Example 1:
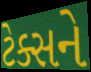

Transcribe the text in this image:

ટેક્સને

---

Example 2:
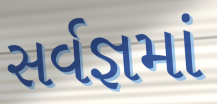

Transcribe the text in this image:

સર્વજ્ઞમાં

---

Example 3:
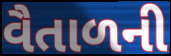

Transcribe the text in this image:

વૈતાળની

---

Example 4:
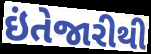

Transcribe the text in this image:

ઇંતેજારીથી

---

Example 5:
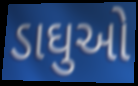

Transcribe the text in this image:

ડાઘુઓ